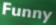
Funny